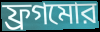
ফ্রগমোর